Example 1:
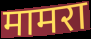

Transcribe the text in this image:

मामरा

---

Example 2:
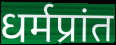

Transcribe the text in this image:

धर्मप्रांत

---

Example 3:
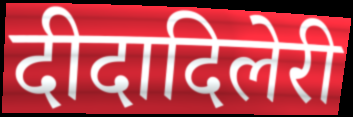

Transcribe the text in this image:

दीदादिलेरी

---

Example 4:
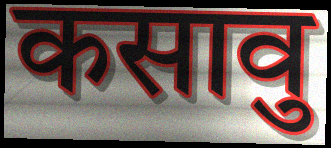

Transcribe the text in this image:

कसावु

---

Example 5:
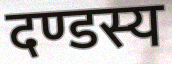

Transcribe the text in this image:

दण्डस्य